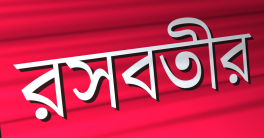
রসবতীর